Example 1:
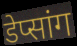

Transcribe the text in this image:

डेप्सांग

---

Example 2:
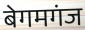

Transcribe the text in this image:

बेगमगंज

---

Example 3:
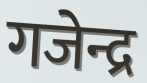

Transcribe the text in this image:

गजेन्‍द्र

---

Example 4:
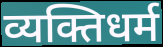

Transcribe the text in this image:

व्यक्तिधर्म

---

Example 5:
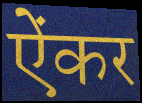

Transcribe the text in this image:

ऐंकर